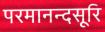
परमानन्दसूरि